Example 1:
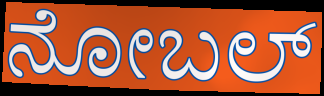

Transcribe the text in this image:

ನೋಬಲ್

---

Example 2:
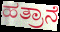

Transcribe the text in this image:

ಹತ್ರಾನೆ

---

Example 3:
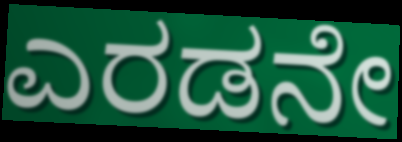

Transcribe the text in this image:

ಎರಡನೇ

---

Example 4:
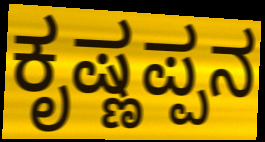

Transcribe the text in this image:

ಕೃಷ್ಣಪ್ಪನ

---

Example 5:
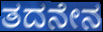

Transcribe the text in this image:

ತದನೇನ